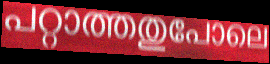
പറ്റാത്തതുപോലെ